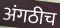
अंगठीच